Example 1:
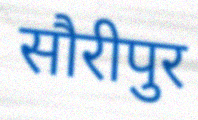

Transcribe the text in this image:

सौरीपुर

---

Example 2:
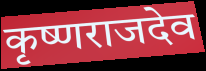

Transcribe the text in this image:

कृष्णराजदेव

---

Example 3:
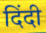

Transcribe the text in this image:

दिंदी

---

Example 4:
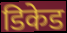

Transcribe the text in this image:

डिकेड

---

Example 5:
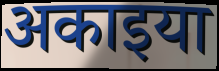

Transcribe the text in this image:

अकाइया